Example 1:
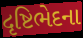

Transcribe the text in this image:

દૃષ્ટિભેદના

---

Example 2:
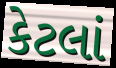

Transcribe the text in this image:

કેટલાં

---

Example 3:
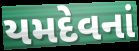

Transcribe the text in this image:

યમદેવનાં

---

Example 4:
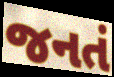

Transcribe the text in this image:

જનતં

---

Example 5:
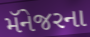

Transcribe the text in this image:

મૅનેજરના